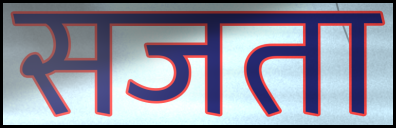
सजता